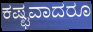
ಕಷ್ಟವಾದರೂ